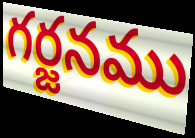
గర్జనము